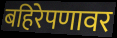
बहिरेपणावर